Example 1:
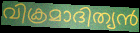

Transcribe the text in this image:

വിക്രമാദിത്യൻ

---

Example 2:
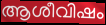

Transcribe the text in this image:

ആശീവിഷം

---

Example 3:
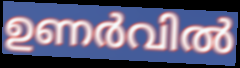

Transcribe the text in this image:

ഉണർവിൽ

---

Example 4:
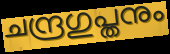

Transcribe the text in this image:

ചന്ദ്രഗുപ്തനും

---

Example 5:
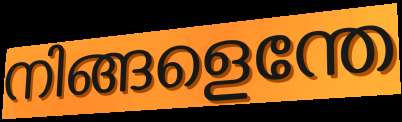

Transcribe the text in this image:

നിങ്ങളെന്തേ